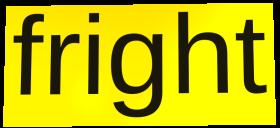
fright